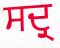
ਸਦ੍ਰ